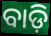
ବାଡ଼ି